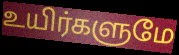
உயிர்களுமே